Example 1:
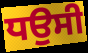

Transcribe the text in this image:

ਧਉਸੀ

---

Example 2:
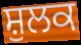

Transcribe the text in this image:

ਸ਼ੁਲਕ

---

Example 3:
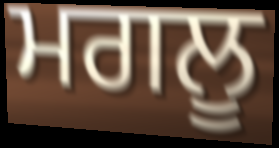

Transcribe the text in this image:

ਮਗਲੂ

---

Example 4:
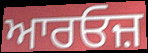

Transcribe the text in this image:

ਆਰਓਜ਼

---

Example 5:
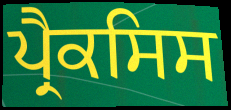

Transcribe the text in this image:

ਪ੍ਰੈਕਸਿਸ